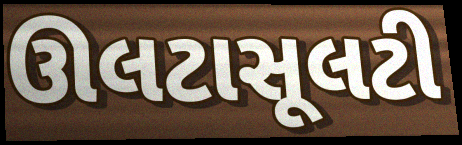
ઊલટાસૂલટી